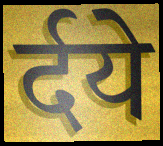
र्दये